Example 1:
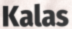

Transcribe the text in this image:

Kalas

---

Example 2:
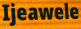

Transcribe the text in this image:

Ijeawele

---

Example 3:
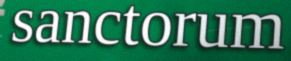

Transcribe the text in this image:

sanctorum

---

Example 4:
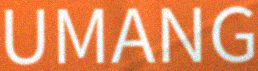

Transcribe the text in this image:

UMANG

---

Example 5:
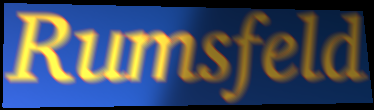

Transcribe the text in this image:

Rumsfeld